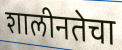
शालीनतेचा